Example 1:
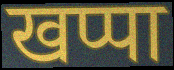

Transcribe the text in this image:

खप्पा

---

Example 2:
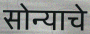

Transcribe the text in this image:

सोन्याचे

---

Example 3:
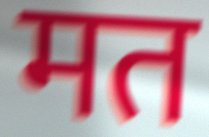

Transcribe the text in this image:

मत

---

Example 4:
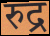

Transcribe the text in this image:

रुद्र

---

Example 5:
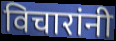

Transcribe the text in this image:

विचारांनी